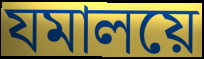
যমালয়ে